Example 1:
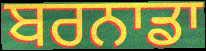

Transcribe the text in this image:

ਬਰਨਾਡਾ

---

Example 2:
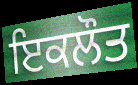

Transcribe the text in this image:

ਇਕਲੌਤ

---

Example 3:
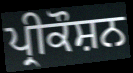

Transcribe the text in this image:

ਪ੍ਰੀਕੌਸ਼ਨ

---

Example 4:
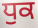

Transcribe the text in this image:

ਧੁਕ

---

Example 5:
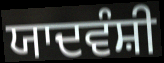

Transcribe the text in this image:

ਯਾਦਵੰਸ਼ੀ